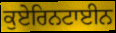
ਕੁਏਰਿਨਟਾਈਨ